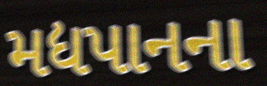
મદ્યપાનના